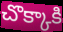
చొక్కాకి